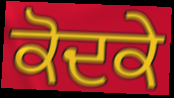
ਕੋਦਕੇ